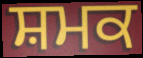
ਸ਼ਮਕ